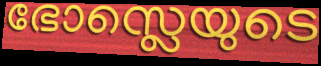
ഭോസ്ലെയുടെ